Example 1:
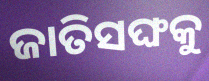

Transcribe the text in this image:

ଜାତିସଙ୍ଘକୁ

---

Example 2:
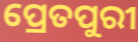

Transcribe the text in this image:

ପ୍ରେତପୁରୀ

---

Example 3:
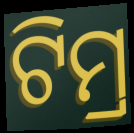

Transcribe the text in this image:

ଟିମ୍ର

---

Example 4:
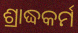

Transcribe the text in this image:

ଶ୍ରାଦ୍ଧକର୍ମ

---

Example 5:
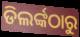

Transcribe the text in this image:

ଡିଲର୍ଙ୍କଠାରୁ